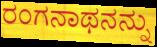
ರಂಗನಾಥನನ್ನು